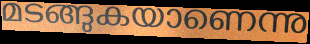
മടങ്ങുകയാണെന്നു